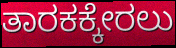
ತಾರಕಕ್ಕೇರಲು